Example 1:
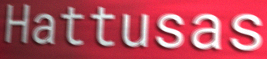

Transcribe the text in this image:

Hattusas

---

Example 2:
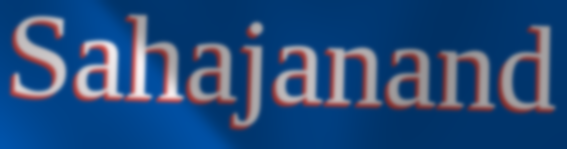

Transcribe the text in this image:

Sahajanand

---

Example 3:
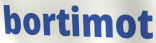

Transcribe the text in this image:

bortimot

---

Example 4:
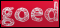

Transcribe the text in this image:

goed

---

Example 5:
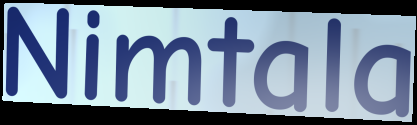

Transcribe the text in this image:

Nimtala